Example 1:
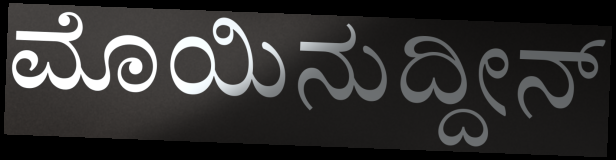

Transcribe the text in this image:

ಮೊಯಿನುದ್ದೀನ್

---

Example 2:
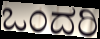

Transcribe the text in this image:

ಒಂದರಿ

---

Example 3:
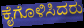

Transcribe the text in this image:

ಕೈಗೊಳಿಸಿದರು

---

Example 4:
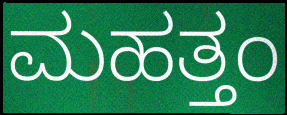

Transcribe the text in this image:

ಮಹತ್ತಂ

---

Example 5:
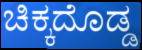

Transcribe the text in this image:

ಚಿಕ್ಕದೊಡ್ಡ